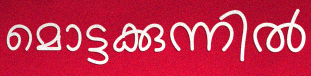
മൊട്ടക്കുന്നിൽ